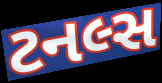
ટનલ્સ